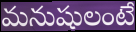
మనుషులంటే